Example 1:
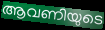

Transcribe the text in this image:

ആവണിയുടെ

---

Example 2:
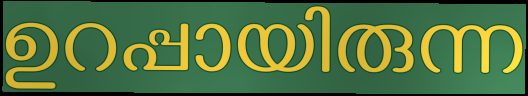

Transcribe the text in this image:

ഉറപ്പായിരുന്ന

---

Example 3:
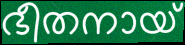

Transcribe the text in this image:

ഭീതനായ്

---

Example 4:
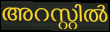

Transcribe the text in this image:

അറസ്റ്റിൽ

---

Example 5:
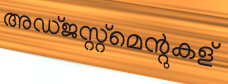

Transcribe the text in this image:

അഡ്ജസ്റ്റ്മെന്റുകള്